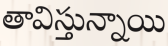
తావిస్తున్నాయి